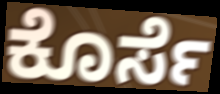
ಕೊರ್ಸೆ